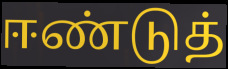
ஈண்டுத்